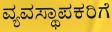
ವ್ಯವಸ್ಥಾಪಕರಿಗೆ